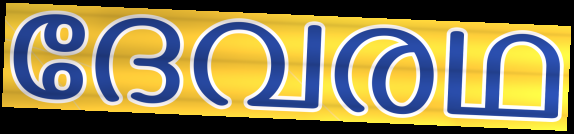
ദേവരഥ